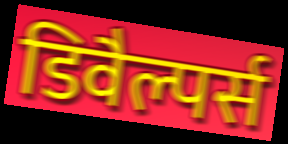
डिवैल्पर्स